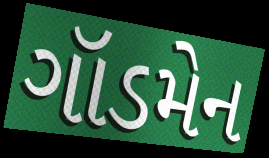
ગૉડમેન